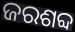
ଜରଶବ୍ଦ